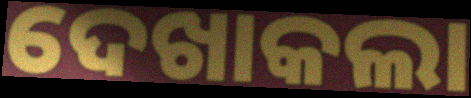
ଦେଖାକଲା